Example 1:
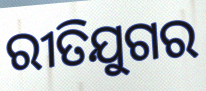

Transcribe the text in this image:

ରୀତିଯୁଗର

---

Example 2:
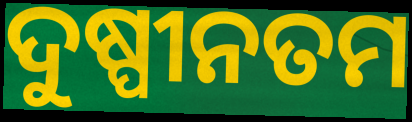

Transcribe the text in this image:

ଦୁଷ୍ପୀନତମ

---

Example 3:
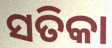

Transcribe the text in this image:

ସତିକା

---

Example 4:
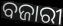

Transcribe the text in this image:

ବଜାରୀ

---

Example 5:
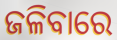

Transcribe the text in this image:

ଜଳିବାରେ